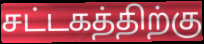
சட்டகத்திற்கு